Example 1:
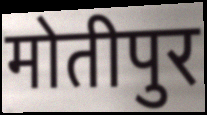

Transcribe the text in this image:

मोतीपुर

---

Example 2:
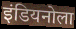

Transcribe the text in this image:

इंडियनोला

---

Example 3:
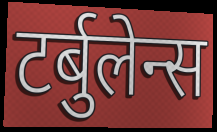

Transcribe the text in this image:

टर्बुलेन्स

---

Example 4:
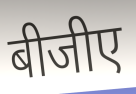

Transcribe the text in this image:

बीजीए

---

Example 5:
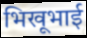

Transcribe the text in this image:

भिखूभाई